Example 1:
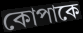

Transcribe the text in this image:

কোপাকে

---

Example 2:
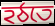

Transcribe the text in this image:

হঠতে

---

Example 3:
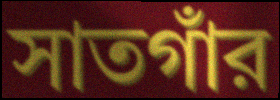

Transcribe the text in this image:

সাতগাঁর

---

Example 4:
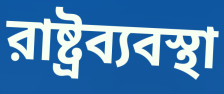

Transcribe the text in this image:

রাষ্ট্রব্যবস্থা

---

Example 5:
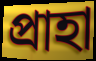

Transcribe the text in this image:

প্রাহা